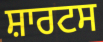
ਸ਼ਾਰਟਸ